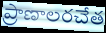
ప్రాణాలరచేత